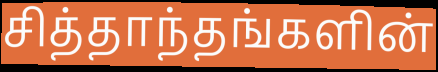
சித்தாந்தங்களின்